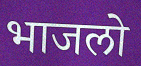
भाजलो